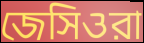
জেসিওরা